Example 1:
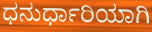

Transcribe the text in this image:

ಧನುರ್ಧಾರಿಯಾಗಿ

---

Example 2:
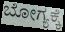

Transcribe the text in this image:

ಬೋಗ್ಯಕ್ಕೆ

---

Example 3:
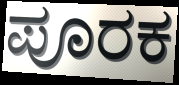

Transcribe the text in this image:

ಪೂರಕ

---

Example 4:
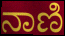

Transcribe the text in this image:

ನಾಣಿ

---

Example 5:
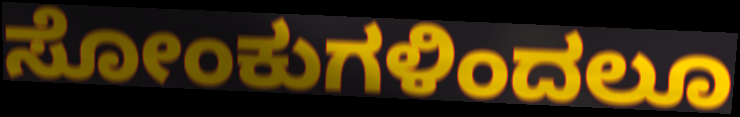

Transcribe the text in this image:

ಸೋಂಕುಗಳಿಂದಲೂ